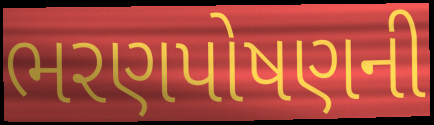
ભરણપોષણની